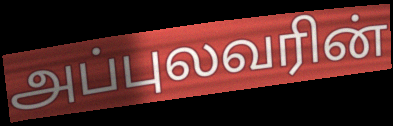
அப்புலவரின்